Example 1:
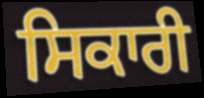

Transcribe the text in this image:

ਸਿਕਾਰੀ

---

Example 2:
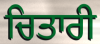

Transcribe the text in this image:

ਚਿਤਾਰੀ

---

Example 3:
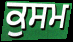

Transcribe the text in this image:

ਕੁਸਮ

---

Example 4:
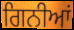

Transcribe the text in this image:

ਗਿਨੀਆਂ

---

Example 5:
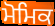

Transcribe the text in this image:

ਮੋਮਿਕ